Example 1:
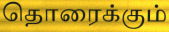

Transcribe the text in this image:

தொரைக்கும்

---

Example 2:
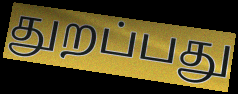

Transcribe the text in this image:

துறப்பது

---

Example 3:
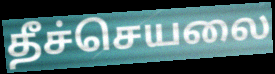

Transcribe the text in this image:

தீச்செயலை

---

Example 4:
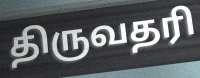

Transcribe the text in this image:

திருவதரி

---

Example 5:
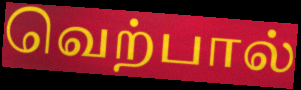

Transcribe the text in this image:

வெற்பால்